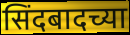
सिंदबादच्या